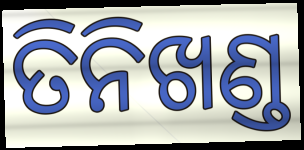
ତିନିଖଣ୍ଡ